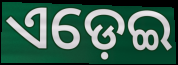
ଏଡ଼େଇ